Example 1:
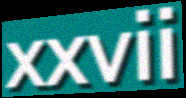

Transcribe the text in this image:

xxvii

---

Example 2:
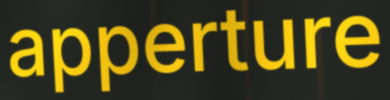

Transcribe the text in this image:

apperture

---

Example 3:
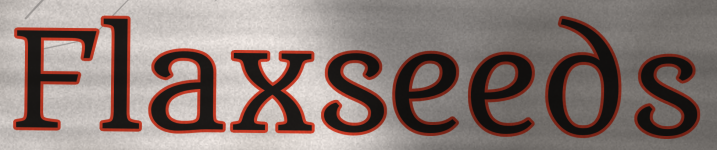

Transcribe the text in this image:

Flaxseeds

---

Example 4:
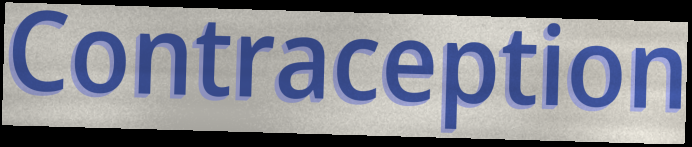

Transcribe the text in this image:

Contraception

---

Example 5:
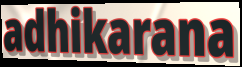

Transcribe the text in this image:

adhikarana